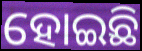
ହୋଇଛି